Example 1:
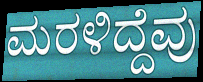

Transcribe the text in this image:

ಮರಳಿದ್ದೆವು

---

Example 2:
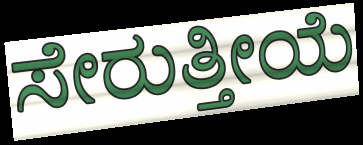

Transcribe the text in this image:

ಸೇರುತ್ತೀಯೆ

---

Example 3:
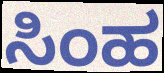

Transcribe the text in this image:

ಸಿಂಹ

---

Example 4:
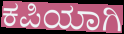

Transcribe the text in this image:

ಕಪಿಯಾಗಿ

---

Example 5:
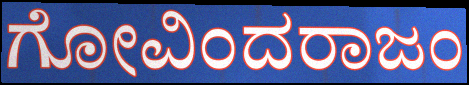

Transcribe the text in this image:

ಗೋವಿಂದರಾಜಂ